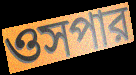
ওসপার